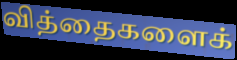
வித்தைகளைக்